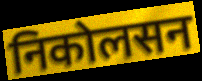
निकोलसन